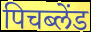
पिचब्लेंड